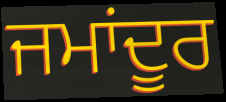
ਜਮਾਂਦੂਰ